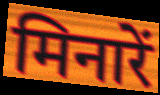
मिनारें